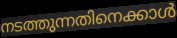
നടത്തുന്നതിനെക്കാൾ